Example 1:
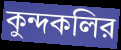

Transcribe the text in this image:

কুন্দকলির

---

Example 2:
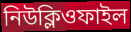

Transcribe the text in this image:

নিউক্লিওফাইল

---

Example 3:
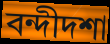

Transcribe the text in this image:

বন্দীদশা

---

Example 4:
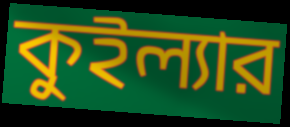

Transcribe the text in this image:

কুইল্যার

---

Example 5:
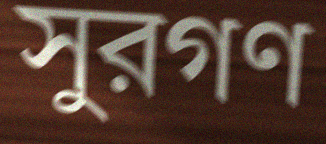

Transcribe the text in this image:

সুরগণ